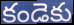
కండెకు